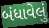
બંધાવેલું